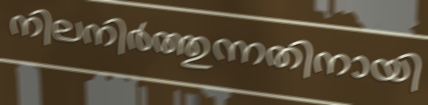
നിലനിർത്തുന്നതിനായി